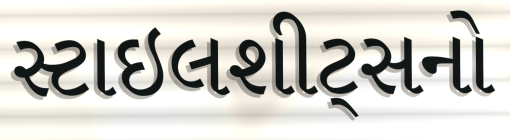
સ્ટાઇલશીટ્સનો